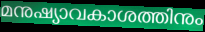
മനുഷ്യാവകാശത്തിനും